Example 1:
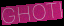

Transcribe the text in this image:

GHOTI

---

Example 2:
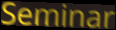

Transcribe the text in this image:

Seminar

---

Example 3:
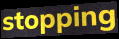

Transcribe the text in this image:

stopping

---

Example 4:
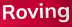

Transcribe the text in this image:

Roving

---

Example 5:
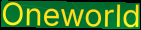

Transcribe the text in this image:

Oneworld